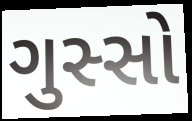
ગુસ્સો